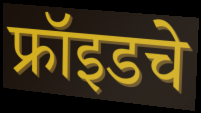
फ्रॉइडचे